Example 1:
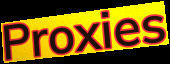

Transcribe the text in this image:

Proxies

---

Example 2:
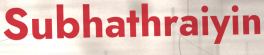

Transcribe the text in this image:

Subhathraiyin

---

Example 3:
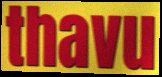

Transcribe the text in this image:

thavu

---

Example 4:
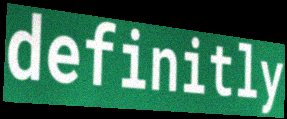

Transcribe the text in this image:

definitly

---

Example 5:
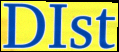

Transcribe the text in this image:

DIst